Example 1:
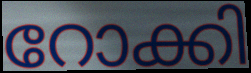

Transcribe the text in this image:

റോക്കി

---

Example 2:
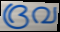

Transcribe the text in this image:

ദ്രവ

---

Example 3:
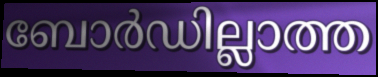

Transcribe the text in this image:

ബോർഡില്ലാത്ത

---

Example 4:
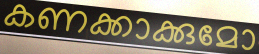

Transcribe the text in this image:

കണക്കാക്കുമോ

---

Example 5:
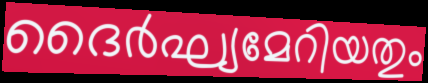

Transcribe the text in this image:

ദൈർഘ്യമേറിയതും